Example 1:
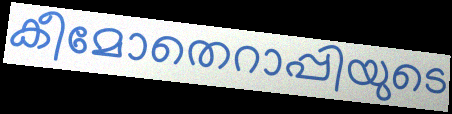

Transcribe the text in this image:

കീമോതെറാപ്പിയുടെ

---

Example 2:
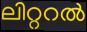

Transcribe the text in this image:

ലിറ്ററൽ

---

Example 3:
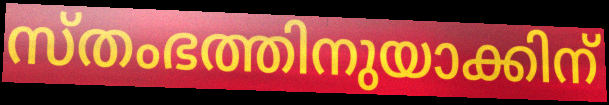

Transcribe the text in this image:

സ്തംഭത്തിനുയാക്കിന്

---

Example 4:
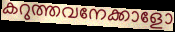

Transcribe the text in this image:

കറുത്തവനേക്കാളോ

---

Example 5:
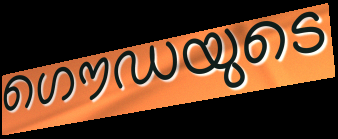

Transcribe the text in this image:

ഗൌഡയുടെ